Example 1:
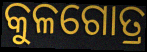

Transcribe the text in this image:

କୁଳଗୋତ୍ର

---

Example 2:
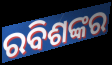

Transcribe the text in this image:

ରବିଶଙ୍କର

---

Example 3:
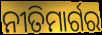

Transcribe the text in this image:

ନୀତିମାର୍ଗର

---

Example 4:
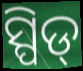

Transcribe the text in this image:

ସ୍ପିଡ୍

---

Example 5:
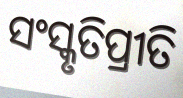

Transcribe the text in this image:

ସଂସ୍କୃତିପ୍ରୀତି